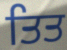
ਤਿਤ